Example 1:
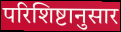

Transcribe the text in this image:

परिशिष्टानुसार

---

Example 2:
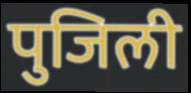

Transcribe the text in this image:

पुजिली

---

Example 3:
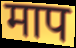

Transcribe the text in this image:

माप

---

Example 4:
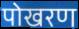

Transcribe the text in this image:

पोखरण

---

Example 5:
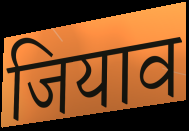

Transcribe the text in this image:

जियाव